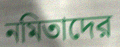
নমিতাদের